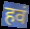
हवं